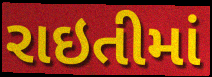
રાઇતીમાં